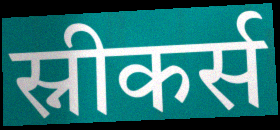
स्नीकर्स